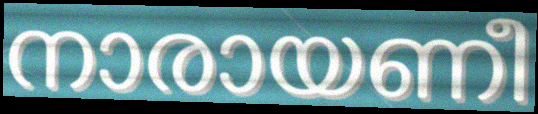
നാരായണീ